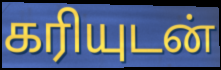
கரியுடன்